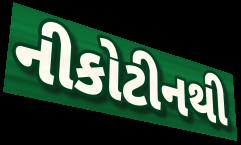
નીકોટીનથી